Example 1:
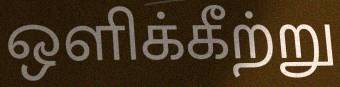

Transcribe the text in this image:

ஒளிக்கீற்று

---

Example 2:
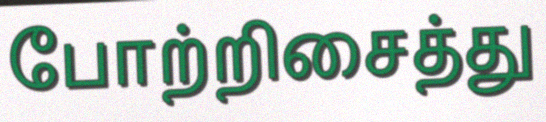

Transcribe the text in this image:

போற்றிசைத்து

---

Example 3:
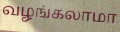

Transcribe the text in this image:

வழங்கலாமா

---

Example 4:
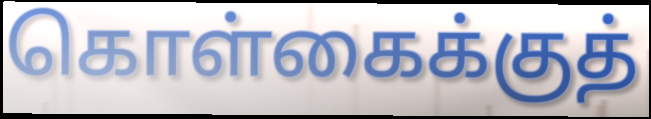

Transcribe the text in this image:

கொள்கைக்குத்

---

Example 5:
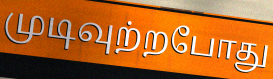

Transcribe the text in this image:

முடிவுற்றபோது